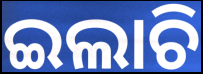
ଇଲାଚି